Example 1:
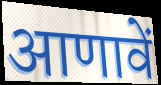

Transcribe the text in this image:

आणावें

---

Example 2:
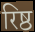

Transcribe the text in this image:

रिष्ठ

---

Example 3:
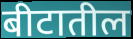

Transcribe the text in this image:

बीटातील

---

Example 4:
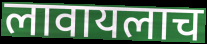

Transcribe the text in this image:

लावायलाच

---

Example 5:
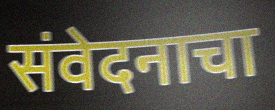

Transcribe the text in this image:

संवेदनाचा